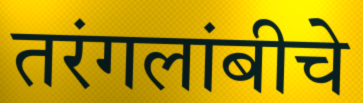
तरंगलांबीचे